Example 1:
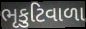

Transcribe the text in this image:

ભૃકુટિવાળા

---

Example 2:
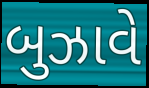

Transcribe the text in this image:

બુઝાવે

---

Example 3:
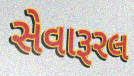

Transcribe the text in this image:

સેવારૂરલ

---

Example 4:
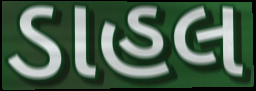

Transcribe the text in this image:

ડાહલ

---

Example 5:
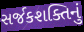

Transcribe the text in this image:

સર્જકશક્તિનું